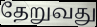
தேறுவது